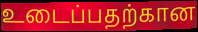
உடைப்பதற்கான